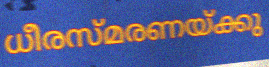
ധീരസ്മരണയ്ക്കു